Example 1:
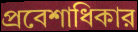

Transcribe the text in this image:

প্রবেশাধিকার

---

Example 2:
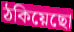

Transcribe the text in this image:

ঠকিয়েছো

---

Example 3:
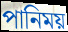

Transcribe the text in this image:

পানিময়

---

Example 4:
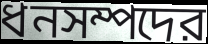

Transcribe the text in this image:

ধনসম্পদের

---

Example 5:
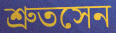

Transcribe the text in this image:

শ্রুতসেন